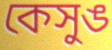
কেসুঙ